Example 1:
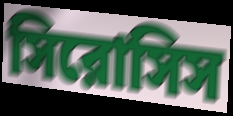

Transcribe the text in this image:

সিরোসিস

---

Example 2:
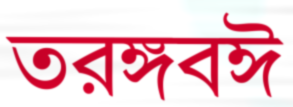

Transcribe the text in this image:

তরঙ্গবঈ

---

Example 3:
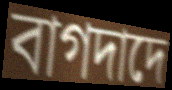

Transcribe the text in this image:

বাগদাদে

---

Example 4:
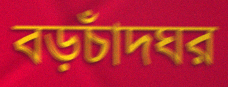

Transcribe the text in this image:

বড়চাঁদঘর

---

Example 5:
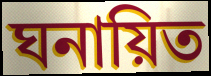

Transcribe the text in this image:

ঘনায়িত